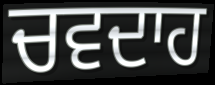
ਚਵਦਾਹ